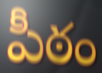
పీఠం